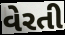
વેરતી